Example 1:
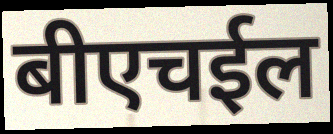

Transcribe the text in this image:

बीएचईल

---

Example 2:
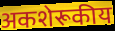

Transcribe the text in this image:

अकशेरूकीय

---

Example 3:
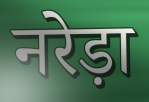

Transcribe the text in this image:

नरेड़ा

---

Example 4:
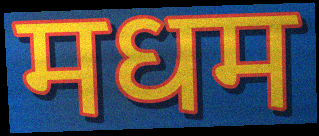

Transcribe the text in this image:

मधम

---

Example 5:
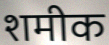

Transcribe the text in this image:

शमीक